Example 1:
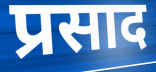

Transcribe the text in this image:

प्रसाद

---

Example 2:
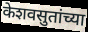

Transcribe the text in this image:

केशवसुतांच्या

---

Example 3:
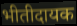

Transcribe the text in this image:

भीतीदायक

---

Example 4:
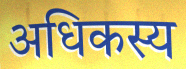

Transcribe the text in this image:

अधिकस्य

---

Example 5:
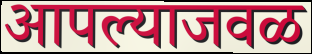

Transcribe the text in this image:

आपल्याजवळ